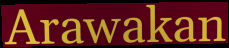
Arawakan